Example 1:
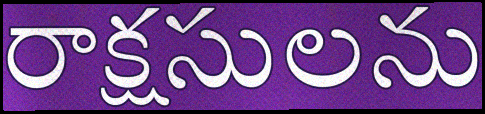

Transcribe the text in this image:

రాక్షసులను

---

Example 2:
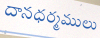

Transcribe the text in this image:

దానధర్మములు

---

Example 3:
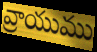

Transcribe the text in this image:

వ్రాయుము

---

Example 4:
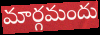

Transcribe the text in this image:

మార్గమందు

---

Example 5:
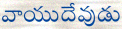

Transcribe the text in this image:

వాయుదేవుడు